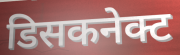
डिसकनेक्ट